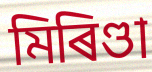
মিৰিণ্ডা